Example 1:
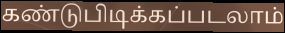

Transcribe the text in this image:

கண்டுபிடிக்கப்படலாம்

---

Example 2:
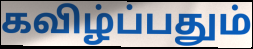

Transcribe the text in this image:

கவிழ்ப்பதும்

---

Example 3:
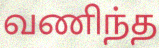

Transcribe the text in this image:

வணிந்த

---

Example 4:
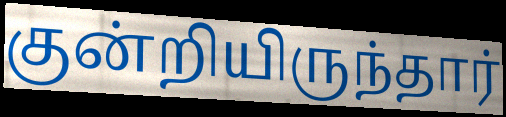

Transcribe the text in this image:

குன்றியிருந்தார்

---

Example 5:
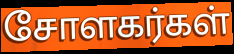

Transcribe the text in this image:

சோளகர்கள்